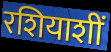
रशियाशीं